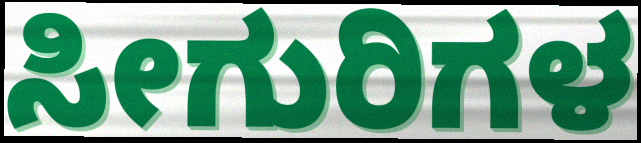
ಸೀಗುರಿಗಳ